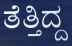
ತೆತ್ತಿದ್ದ